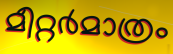
മീറ്റർമാത്രം